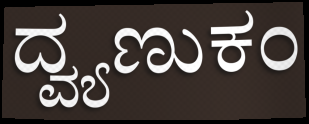
ದ್ವ್ಯಣುಕಂ